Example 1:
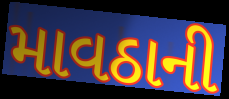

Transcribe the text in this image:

માવઠાની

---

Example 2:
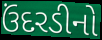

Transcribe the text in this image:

ઉંદરડીનો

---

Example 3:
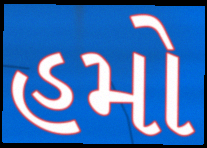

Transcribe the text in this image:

હમો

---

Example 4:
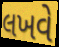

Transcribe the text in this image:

લખવે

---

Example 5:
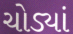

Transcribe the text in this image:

ચોડ્યાં